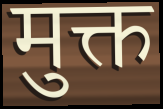
मुक्त